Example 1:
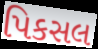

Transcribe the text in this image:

પિકસલ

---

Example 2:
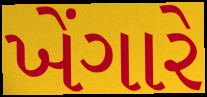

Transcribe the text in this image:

ખેંગારે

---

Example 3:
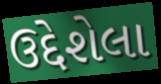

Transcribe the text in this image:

ઉદ્દેશેલા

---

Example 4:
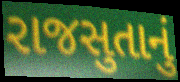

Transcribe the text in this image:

રાજસુતાનું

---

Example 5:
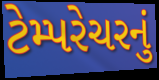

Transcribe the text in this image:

ટેમ્પરેચરનું